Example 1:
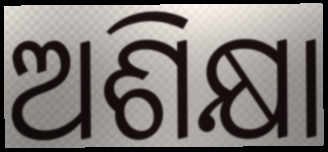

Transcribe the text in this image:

ଅଶିକ୍ଷା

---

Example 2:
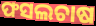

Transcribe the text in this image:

ଫସଲଚାଷ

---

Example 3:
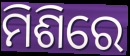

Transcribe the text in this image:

ମିଶିରେ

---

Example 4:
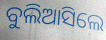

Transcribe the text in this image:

ବୁଲିଆସିଲେ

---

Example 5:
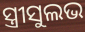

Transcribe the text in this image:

ସ୍ତ୍ରୀସୁଲଭ